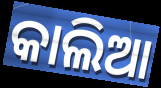
କାଲିଆ